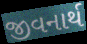
જીવનાર્થ